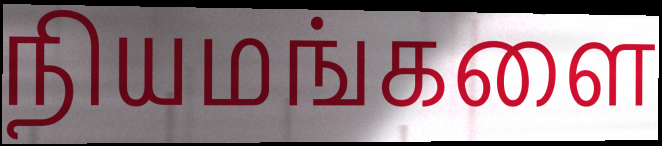
நியமங்களை